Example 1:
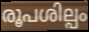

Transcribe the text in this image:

രൂപശില്പം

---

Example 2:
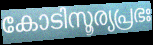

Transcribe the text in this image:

കോടിസൂര്യപ്രഭഃ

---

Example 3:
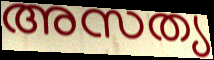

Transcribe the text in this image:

അസത്യ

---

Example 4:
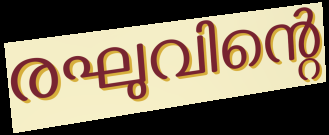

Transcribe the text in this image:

രഘുവിന്റെ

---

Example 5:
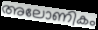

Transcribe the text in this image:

അലോണികം